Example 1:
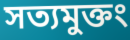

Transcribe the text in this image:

সত্যমুক্তং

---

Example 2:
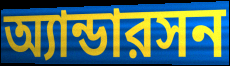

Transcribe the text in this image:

অ্যান্ডারসন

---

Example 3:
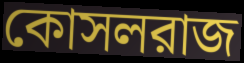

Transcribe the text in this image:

কোসলরাজ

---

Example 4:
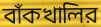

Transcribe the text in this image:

বাঁকখালির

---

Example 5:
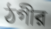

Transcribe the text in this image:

ঠগীর